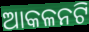
ଆକଳନଟି